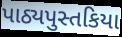
પાઠ્યપુસ્તકિયા